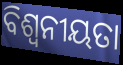
ବିଶ୍ୱନୀୟତା